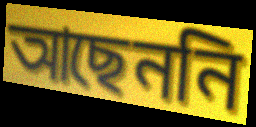
আছেননি